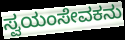
ಸ್ವಯಂಸೇವಕನು